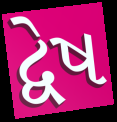
દ્વેષ